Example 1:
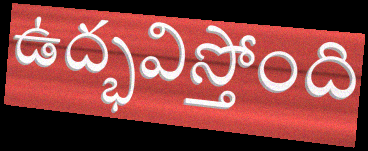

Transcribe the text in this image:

ఉద్భవిస్తోంది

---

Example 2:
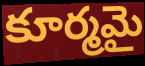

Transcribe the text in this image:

కూర్మమై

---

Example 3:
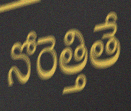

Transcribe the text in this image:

నోరెత్తితే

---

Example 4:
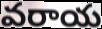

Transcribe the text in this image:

వరాయ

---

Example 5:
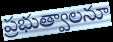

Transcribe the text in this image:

ప్రభుత్వాలనూ